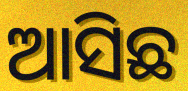
ଆସିଛ